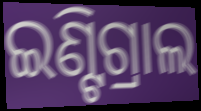
ଇଣ୍ଟିଗ୍ରାଲ